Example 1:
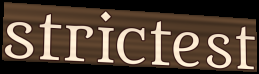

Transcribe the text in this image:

strictest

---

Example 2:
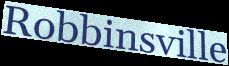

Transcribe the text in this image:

Robbinsville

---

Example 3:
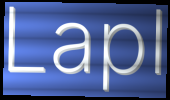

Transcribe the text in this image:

Lapl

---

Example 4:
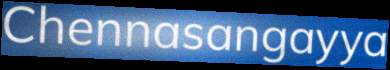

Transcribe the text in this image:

Chennasangayya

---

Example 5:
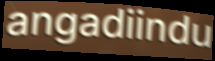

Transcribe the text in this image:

angadiindu